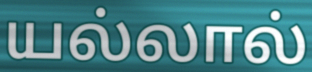
யல்லால்